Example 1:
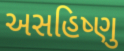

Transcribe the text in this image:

અસહિષ્ણુ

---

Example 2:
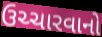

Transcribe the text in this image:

ઉચ્ચારવાનો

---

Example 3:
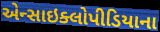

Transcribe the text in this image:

એન્સાઇક્લોપીડિયાના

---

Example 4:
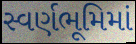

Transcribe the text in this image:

સ્વર્ણભૂમિમાં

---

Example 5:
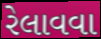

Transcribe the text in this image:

રેલાવવા